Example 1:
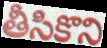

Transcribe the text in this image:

తీసికొని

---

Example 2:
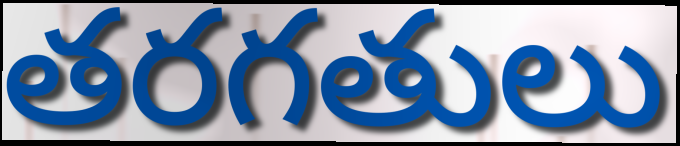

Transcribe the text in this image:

తరగతులు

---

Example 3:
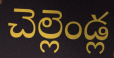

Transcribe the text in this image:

చెల్లెండ్ల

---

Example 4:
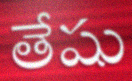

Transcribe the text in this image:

తేషు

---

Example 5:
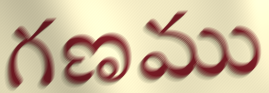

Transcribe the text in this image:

గణము